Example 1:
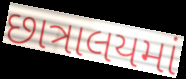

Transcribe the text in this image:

છાત્રાલયમાં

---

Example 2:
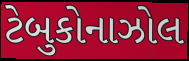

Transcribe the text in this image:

ટેબુકોનાઝોલ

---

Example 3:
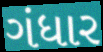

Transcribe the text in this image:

ગંધાર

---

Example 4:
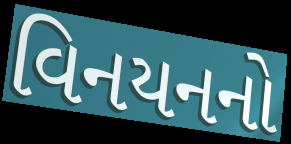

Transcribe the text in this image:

વિનયનનો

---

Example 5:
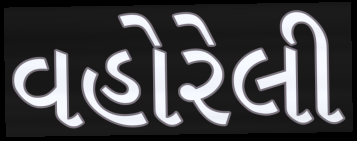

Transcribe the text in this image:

વહોરેલી